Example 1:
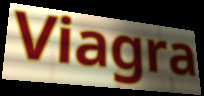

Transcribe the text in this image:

Viagra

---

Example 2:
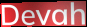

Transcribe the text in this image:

Devah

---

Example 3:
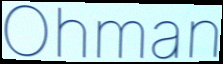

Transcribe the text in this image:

Ohman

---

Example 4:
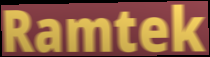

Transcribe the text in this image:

Ramtek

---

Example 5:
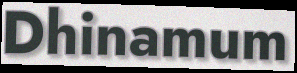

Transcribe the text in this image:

Dhinamum